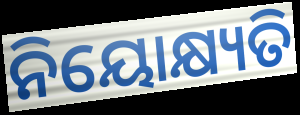
ନିୟୋକ୍ଷ୍ୟତି